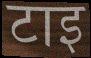
टाइ